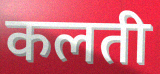
कलती